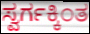
ಸ್ವರ್ಗಕ್ಕಿಂತ